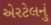
એરટેલનું